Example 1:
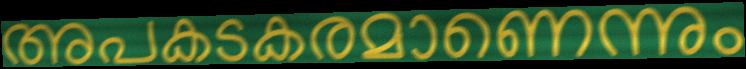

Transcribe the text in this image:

അപകടകരമാണെന്നും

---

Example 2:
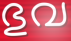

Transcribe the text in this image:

ഭുവ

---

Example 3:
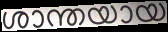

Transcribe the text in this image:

ശാന്തയായ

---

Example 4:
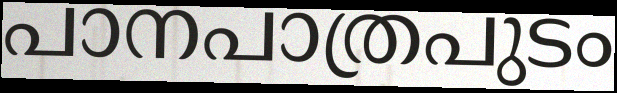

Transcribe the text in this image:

പാനപാത്രപുടം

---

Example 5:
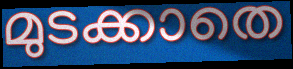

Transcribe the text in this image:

മുടക്കാതെ